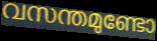
വസന്തമുണ്ടോ